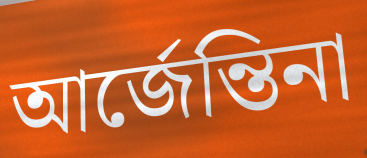
আর্জেন্তিনা